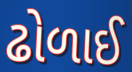
ઢોળાઈ